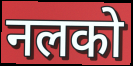
नलको